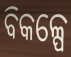
ବିକଳ୍ପେ